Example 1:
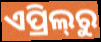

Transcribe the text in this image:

ଏପ୍ରିଲ୍‍ରୁ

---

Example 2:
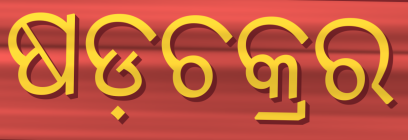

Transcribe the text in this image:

ଷଡ଼ଚକ୍ରର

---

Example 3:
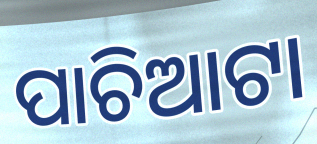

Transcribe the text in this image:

ପାଚିଆଟା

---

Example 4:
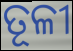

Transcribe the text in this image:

ତୂଳୀ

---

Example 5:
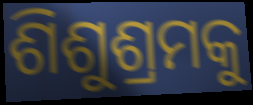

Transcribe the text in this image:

ଶିଶୁଶ୍ରମକୁ